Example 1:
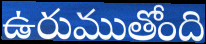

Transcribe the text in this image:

ఉరుముతోంది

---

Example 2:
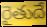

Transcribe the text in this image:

రైతుదే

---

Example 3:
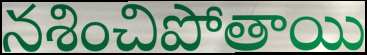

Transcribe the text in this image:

నశించిపోతాయి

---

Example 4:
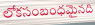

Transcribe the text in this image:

లోకసంబంధమైనది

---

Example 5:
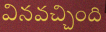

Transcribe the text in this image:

వినవచ్చింది